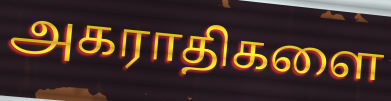
அகராதிகளை